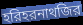
হরিহরনাথজির